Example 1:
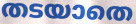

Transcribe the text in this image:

തടയാതെ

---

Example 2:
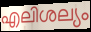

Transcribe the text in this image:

എലിശല്യം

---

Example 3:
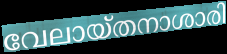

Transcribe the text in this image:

വേലായ്തനാശാരി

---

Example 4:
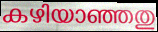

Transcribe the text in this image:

കഴിയാഞ്ഞതു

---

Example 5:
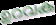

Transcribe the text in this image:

ഉറവക